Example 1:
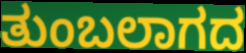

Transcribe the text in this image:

ತುಂಬಲಾಗದ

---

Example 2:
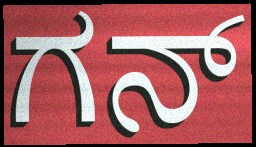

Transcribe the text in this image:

ಗನ್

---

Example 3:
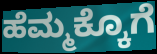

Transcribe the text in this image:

ಹೆಮ್ಮಕ್ಕೊಗೆ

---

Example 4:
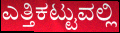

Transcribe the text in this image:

ಎತ್ತಿಕಟ್ಟುವಲ್ಲಿ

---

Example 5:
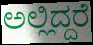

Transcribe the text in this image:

ಅಲ್ಲಿದ್ದರೆ